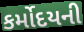
કર્મોદયની